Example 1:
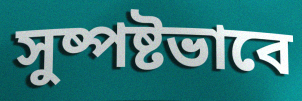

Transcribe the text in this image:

সুষ্পষ্টভাবে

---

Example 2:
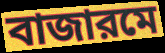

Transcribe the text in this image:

বাজারমে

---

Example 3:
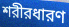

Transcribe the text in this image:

শরীরধারণ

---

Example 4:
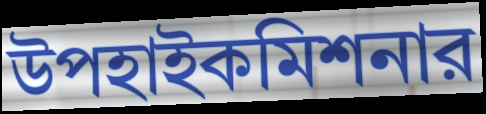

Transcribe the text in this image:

উপহাইকমিশনার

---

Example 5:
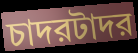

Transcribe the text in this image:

চাদরটাদর